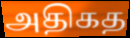
அதிகத